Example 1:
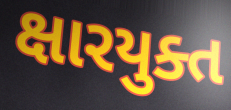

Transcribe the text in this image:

ક્ષારયુક્ત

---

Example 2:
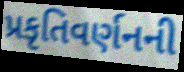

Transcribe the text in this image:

પ્રકૃતિવર્ણનની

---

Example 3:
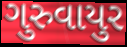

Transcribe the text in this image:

ગુરુવાયુર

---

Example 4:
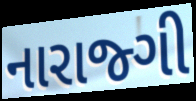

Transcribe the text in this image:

નારાજ્ગી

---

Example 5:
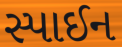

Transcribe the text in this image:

સ્પાઈન